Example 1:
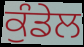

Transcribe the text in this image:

ਕੁੰਡੇਲ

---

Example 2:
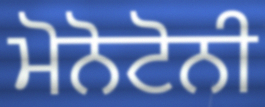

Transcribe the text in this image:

ਮੋਨੋਟੋਨੀ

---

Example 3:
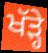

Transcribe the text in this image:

ਖੱੜ੍ਹੇ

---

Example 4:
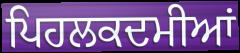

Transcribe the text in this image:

ਪਿਹਲਕਦਮੀਆਂ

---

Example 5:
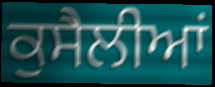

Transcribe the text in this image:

ਕੁਸੈਲੀਆਂ